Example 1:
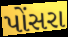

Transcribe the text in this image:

પોંસરા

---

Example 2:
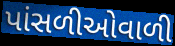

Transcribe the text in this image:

પાંસળીઓવાળી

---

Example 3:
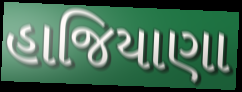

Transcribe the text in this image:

હાજિયાણા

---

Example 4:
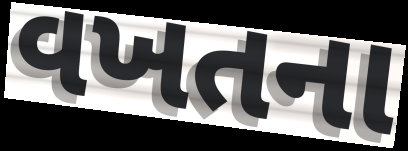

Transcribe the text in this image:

વખતના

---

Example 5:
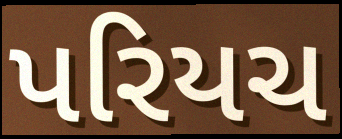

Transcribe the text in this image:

પરિયચ